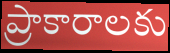
ప్రాకారాలకు